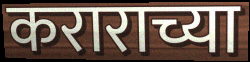
कराराच्या